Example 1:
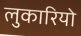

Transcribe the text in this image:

लुकारियो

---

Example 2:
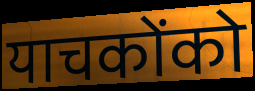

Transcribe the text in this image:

याचकोंको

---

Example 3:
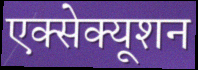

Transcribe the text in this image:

एक्सेक्यूशन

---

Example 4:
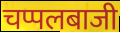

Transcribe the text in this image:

चप्पलबाजी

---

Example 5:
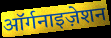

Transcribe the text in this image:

ऑर्गनाइज़ेशन